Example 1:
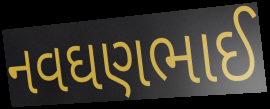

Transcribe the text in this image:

નવઘણભાઈ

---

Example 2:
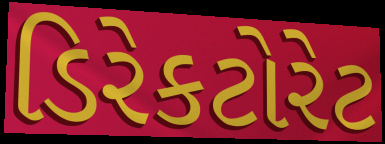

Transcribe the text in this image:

ડિરેકટોરેટ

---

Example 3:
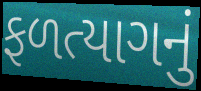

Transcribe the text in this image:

ફળત્યાગનું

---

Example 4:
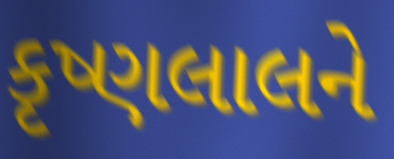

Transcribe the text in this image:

કૃષ્ણલાલને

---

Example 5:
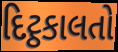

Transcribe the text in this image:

દિટ્ઠકાલતો